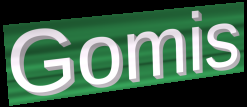
Gomis